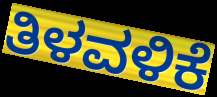
ತಿಳವಳಿಕೆ